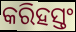
କରିହସ୍ତଂ